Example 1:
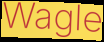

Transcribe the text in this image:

Wagle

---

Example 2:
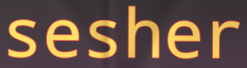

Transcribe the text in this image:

sesher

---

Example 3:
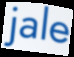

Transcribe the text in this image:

jale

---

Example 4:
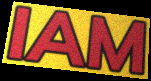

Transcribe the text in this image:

IAM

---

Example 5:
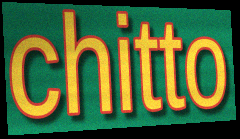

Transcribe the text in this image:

chitto